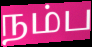
நம்ப